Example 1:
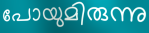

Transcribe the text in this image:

പോയുമിരുന്നു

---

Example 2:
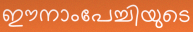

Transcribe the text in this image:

ഈനാംപേച്ചിയുടെ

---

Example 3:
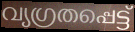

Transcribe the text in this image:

വ്യഗ്രതപ്പെട്ട്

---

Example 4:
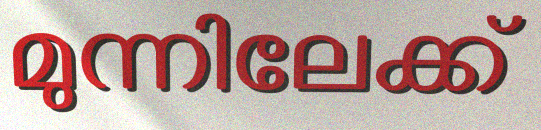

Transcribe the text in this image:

മുന്നിലേക്ക്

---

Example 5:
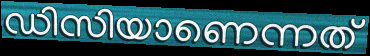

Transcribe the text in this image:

ഡിസിയാണെന്നത്